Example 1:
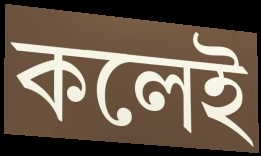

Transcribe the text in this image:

কলেই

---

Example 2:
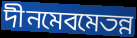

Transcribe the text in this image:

দীনমেবমেতন্ন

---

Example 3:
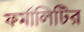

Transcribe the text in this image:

ফর্মালিটির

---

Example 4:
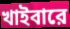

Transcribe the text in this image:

খাইবারে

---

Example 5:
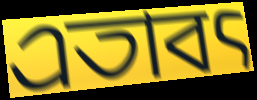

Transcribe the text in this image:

এতাবৎ